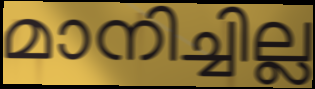
മാനിച്ചില്ല